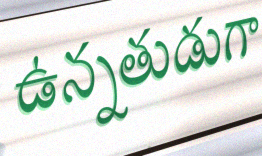
ఉన్నతుడుగా